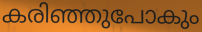
കരിഞ്ഞുപോകും